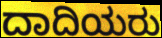
ದಾದಿಯರು